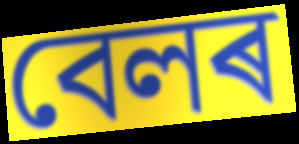
বেলৰ